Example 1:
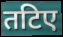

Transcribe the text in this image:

तटिए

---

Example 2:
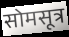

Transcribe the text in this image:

सोमसूत्र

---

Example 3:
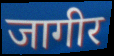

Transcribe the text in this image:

जागीर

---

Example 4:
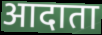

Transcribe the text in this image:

आदाता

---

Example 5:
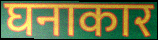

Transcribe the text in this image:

घनाकार